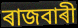
ৰাজবাৰী